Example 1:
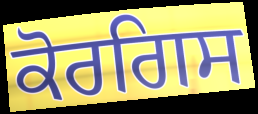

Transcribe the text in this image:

ਕੋਰਗਿਸ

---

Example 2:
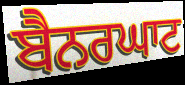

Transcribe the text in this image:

ਬੈਨਰਘਾਟ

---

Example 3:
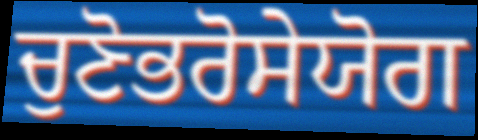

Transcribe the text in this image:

ਚੁਣੋਭਰੋਸੇਯੋਗ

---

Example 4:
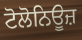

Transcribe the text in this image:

ਟੋਲੋਨਿਊਜ਼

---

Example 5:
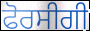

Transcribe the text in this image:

ਫੋਰਸੀਗੀ